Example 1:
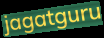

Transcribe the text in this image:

jagatguru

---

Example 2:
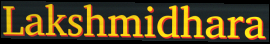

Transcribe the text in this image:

Lakshmidhara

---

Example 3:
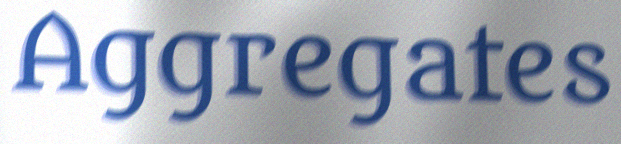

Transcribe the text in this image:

Aggregates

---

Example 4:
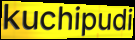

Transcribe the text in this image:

kuchipudi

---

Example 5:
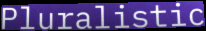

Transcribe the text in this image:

Pluralistic